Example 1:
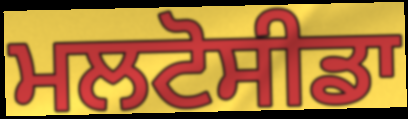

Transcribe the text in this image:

ਮਲਟੋਸੀਡਾ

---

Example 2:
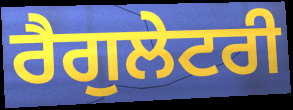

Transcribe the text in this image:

ਰੈਗੁਲੇਟਰੀ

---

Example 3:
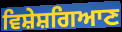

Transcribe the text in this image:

ਵਿਸ਼ੇਸ਼ਗਿਆਣ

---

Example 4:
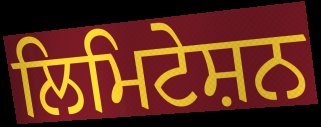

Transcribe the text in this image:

ਲਿਮਿਟੇਸ਼ਨ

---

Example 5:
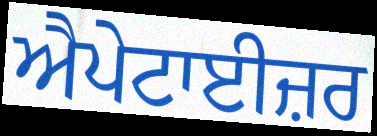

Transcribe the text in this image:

ਐਪੇਟਾਈਜ਼ਰ